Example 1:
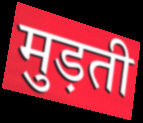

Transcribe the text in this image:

मुड़ती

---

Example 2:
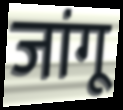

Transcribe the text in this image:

जांगू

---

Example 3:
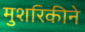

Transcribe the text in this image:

मुशरिकीने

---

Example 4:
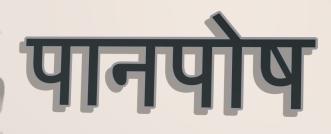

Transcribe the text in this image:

पानपोष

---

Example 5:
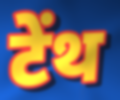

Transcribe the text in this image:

टेंथ